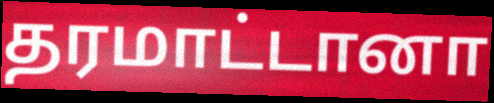
தரமாட்டானா